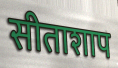
सीताशाप